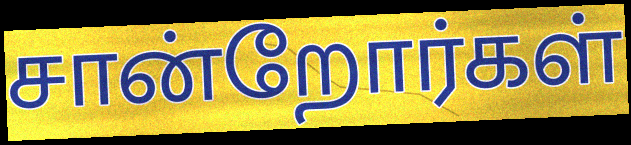
சான்றோர்கள்